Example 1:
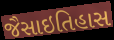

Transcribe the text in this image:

જૈસાઇતિહાસ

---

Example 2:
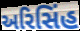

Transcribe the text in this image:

અરિસિંહ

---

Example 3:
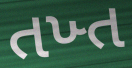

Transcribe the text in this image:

તખ્ત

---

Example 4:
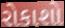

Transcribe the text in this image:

રોકાશો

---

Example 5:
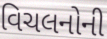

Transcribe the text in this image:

વિચલનોની